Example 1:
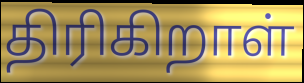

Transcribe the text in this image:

திரிகிறாள்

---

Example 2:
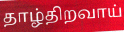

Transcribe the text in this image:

தாழ்திறவாய்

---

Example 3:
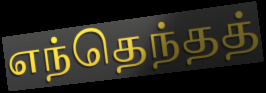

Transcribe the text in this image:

எந்தெந்தத்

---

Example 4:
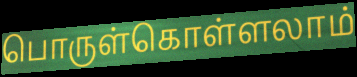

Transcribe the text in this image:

பொருள்கொள்ளலாம்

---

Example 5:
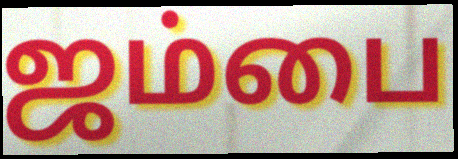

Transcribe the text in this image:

ஜம்பை